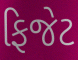
ફિજેટ